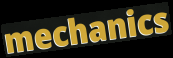
mechanics